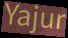
Yajur